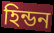
হিন্ডন